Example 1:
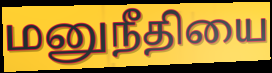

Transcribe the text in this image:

மனுநீதியை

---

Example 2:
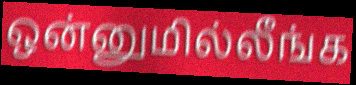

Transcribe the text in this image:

ஒன்னுமில்லீங்க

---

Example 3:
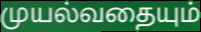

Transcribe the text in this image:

முயல்வதையும்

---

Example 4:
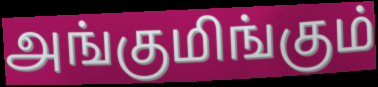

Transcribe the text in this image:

அங்குமிங்கும்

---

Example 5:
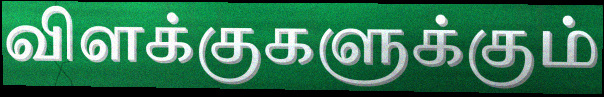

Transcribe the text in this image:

விளக்குகளுக்கும்